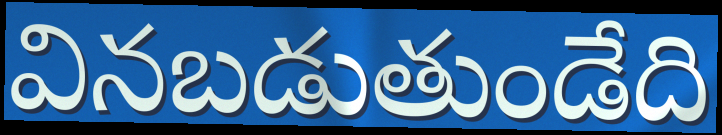
వినబడుతుండేది